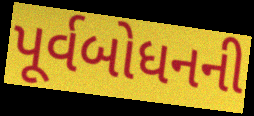
પૂર્વબોધનની